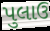
પુલાઉ